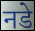
नडे